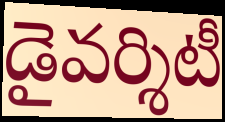
డైవర్శిటీ